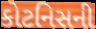
કોટનિસની